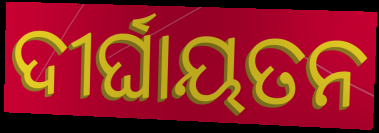
ଦୀର୍ଘାୟତନ